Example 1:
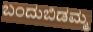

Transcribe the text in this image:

ಬಂದುಬಿಡಮ್ಮ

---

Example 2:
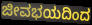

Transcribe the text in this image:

ಜೀವಭಯದಿಂದ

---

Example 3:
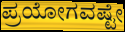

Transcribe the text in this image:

ಪ್ರಯೋಗವಷ್ಟೇ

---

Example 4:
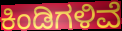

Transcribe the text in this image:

ಕಿಂಡಿಗಳಿವೆ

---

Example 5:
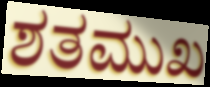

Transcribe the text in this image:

ಶತಮುಖ